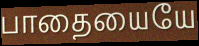
பாதையையே